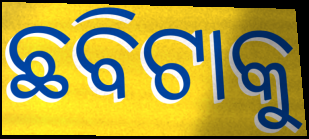
ଛବିଟାକୁ